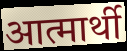
आत्मार्थी